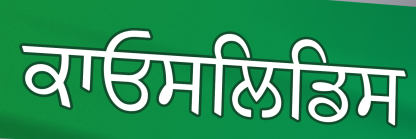
ਕਾਓਸਲਿਡਿਸ